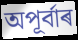
অপূৰ্বাৰ